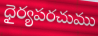
ధైర్యపరచుము